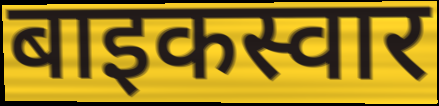
बाइकस्वार